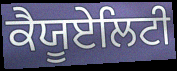
ਕੈਯੂਏਲਿਟੀ